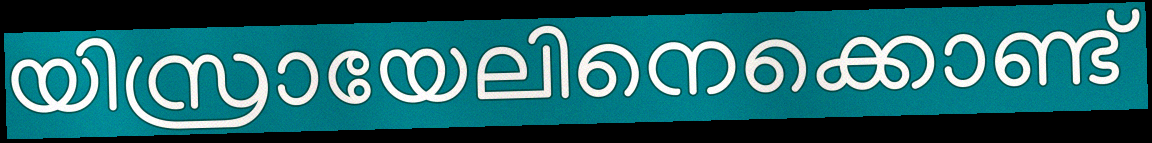
യിസ്രായേലിനെക്കൊണ്ട്